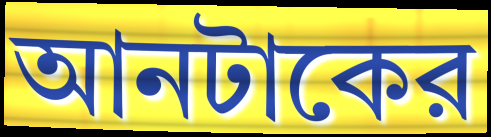
আনটাকের